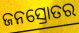
ଜନସ୍ରୋତର